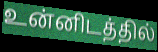
உன்னிடத்தில்